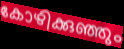
കോഴിക്കുഞ്ഞും